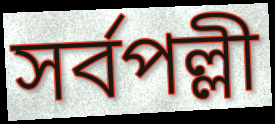
সর্বপল্লী